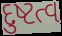
દુષ્ટત્વ